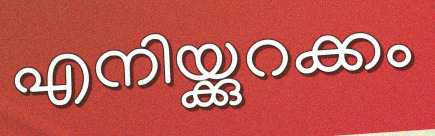
എനിയ്ക്കുറക്കം